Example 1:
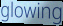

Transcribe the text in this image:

glowing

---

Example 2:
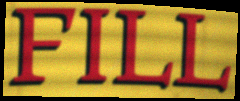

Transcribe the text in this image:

FILL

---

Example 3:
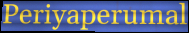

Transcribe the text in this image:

Periyaperumal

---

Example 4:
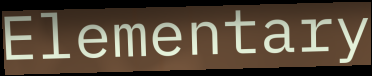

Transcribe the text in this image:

Elementary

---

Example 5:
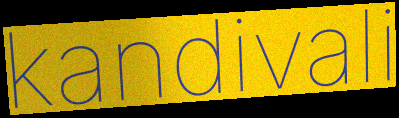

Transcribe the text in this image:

kandivali